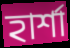
হার্শা